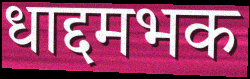
धाद्दमभक